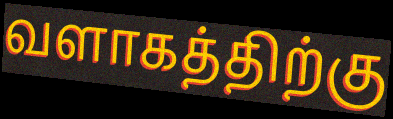
வளாகத்திற்கு